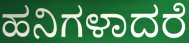
ಹನಿಗಳಾದರೆ